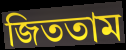
জিততাম